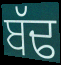
ਬੱਢ